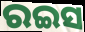
ରଇସ